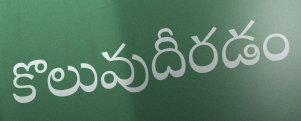
కొలువుదీరడం